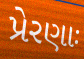
પ્રેરણાઃ